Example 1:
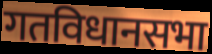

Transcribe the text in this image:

गतविधानसभा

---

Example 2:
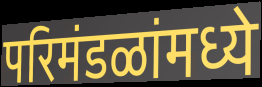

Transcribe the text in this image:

परिमंडळांमध्ये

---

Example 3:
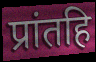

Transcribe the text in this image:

प्रांतहि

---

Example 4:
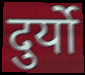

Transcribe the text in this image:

दुर्यो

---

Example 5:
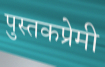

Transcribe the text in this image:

पुस्तकप्रेमी